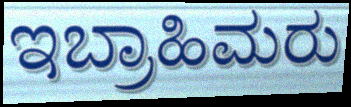
ಇಬ್ರಾಹಿಮರು